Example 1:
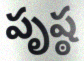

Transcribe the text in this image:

పృష్ఠ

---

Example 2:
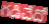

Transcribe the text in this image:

గడిచేదో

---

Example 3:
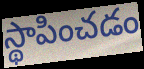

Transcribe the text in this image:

స్థాపించడం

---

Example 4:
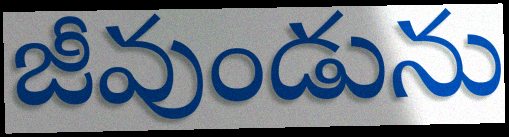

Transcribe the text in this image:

జీవుండును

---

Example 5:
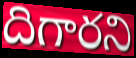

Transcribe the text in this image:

దిగారని